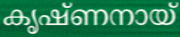
കൃഷ്ണനായ്